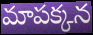
మాపక్కన